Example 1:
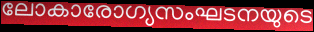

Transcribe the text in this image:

ലോകാരോഗ്യസംഘടനയുടെ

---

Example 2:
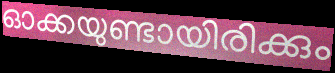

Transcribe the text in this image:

ഓക്കയുണ്ടായിരിക്കും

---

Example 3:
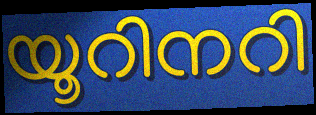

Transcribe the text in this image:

യൂറിനറി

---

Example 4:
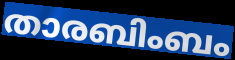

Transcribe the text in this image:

താരബിംബം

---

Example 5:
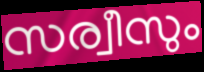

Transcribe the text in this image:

സര്വീസും